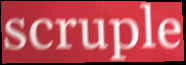
scruple